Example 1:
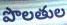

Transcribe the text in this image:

పొలతుల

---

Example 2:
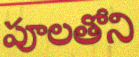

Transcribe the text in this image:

పూలతోని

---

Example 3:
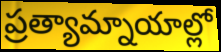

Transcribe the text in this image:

ప్రత్యామ్నాయాల్లో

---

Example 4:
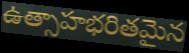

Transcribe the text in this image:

ఉత్సాహభరితమైన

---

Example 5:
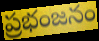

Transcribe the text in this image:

ప్రభంజనం